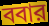
ববার